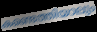
കണ്ടെത്തിയാലും